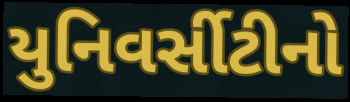
યુનિવર્સીટીનો